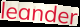
leander